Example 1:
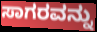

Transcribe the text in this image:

ಸಾಗರವನ್ನು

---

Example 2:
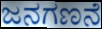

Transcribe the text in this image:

ಜನಗಣನೆ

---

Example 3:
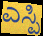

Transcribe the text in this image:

ಎಸ್ಪಿ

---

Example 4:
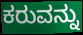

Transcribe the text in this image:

ಕರುವನ್ನು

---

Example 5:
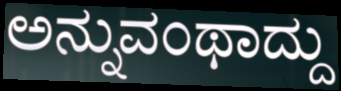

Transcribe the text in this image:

ಅನ್ನುವಂಥಾದ್ದು